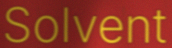
Solvent